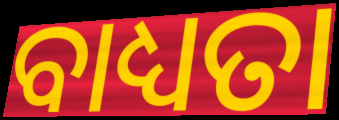
ବାଧ୍ୟତା